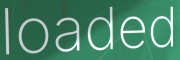
loaded